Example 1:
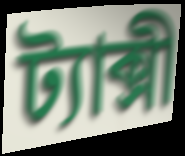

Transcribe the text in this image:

ট্যাক্সী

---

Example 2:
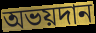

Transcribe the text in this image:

অভয়দান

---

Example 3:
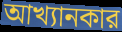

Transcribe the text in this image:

আখ্যানকার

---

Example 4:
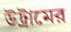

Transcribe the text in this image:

উট্রামের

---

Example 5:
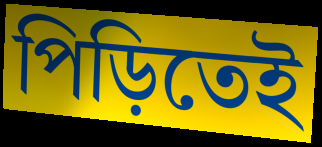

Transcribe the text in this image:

পিড়িতেই